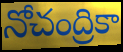
నోచంద్రికా